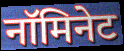
नॉमिनेट